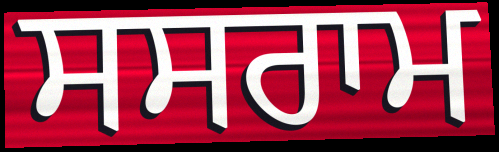
ਸਸਰਾਮ